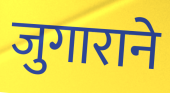
जुगाराने